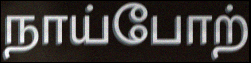
நாய்போற்